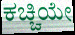
ಕಚ್ಚಿಯೇ